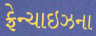
ફ્રેન્ચાઇઝના